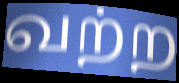
வற்ற